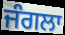
ਜੰਗਲਾ